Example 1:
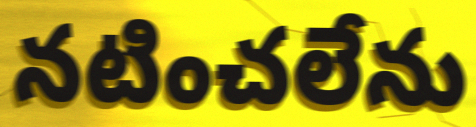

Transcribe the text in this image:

నటించలేను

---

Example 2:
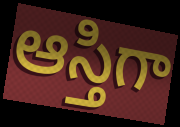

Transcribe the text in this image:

ఆస్తిగా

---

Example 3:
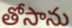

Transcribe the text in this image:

తోసాను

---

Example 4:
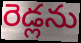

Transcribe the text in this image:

రెడ్లను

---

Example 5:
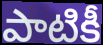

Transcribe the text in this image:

పాటికీ